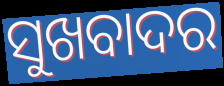
ସୁଖବାଦର